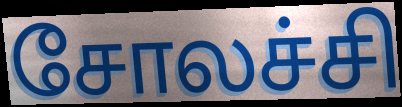
சோலச்சி